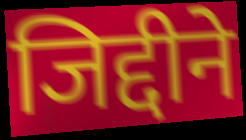
जिद्दीने